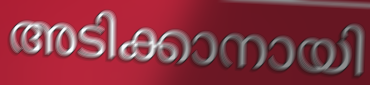
അടിക്കാനായി